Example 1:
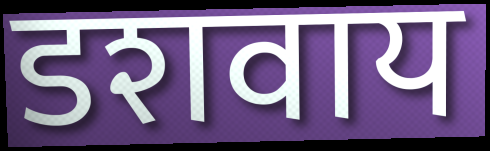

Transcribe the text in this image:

डशवाय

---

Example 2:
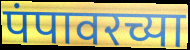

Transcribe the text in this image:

पंपावरच्या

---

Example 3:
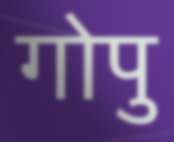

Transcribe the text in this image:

गोपु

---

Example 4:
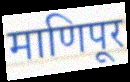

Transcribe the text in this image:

माणिपूर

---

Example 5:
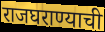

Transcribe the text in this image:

राजघराण्याची